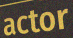
actor